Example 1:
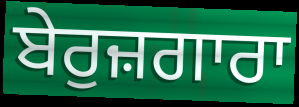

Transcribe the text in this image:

ਬੇਰੁਜ਼ਗਾਰਾ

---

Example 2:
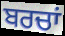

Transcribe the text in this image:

ਬਰਚਾਂ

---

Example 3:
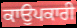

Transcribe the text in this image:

ਕਾਉਪਕਾਰੀ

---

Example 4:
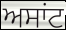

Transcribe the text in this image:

ਅਸਾਂਟ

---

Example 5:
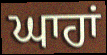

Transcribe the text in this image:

ਘਾਹਾਂ